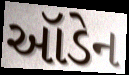
ઑડેન